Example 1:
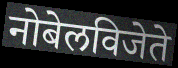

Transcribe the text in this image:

नोबेलविजेते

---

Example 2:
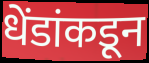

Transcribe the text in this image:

धेंडांकडून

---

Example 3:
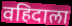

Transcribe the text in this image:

वहिदाला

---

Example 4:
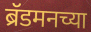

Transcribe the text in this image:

ब्रॅडमनच्या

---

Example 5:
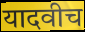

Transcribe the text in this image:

यादवीच